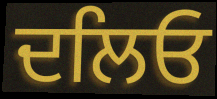
ਦਲਿਓ